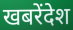
खबरेंदेश